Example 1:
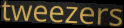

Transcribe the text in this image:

tweezers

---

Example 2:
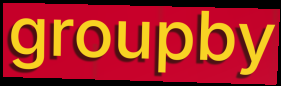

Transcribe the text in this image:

groupby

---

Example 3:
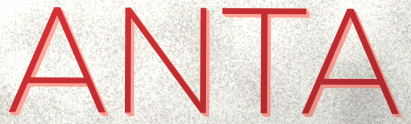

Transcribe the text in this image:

ANTA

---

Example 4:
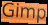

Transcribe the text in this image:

Gimp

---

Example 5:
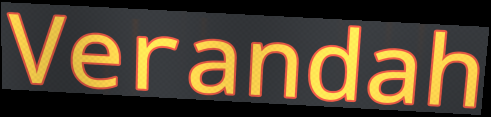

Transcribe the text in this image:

Verandah